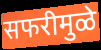
सफरीमुळे